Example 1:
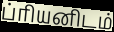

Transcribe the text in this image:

ப்ரியனிடம்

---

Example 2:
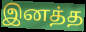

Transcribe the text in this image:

இனத்த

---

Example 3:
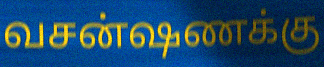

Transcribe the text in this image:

வசன்ஷணக்கு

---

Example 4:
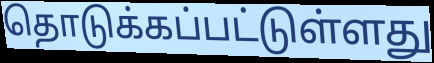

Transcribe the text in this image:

தொடுக்கப்பட்டுள்ளது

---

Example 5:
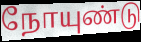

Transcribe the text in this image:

நோயுண்டு